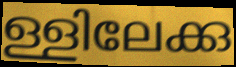
ള്ളിലേക്കു